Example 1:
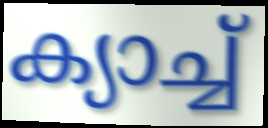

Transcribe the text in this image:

ക്യാച്ച്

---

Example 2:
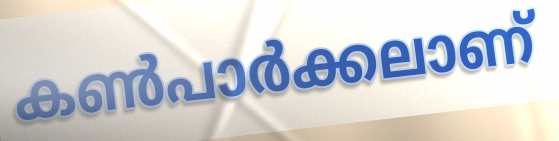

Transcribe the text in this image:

കൺപാർക്കലാണ്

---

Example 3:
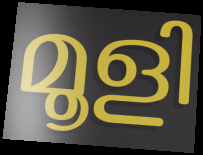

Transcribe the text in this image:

മൂളി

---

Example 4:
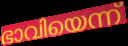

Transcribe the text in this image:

ഭാവിയെന്ന്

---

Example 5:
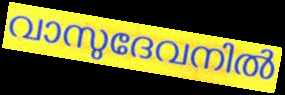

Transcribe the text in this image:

വാസുദേവനിൽ